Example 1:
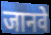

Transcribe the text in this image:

जानवे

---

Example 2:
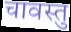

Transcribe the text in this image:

चावस्तु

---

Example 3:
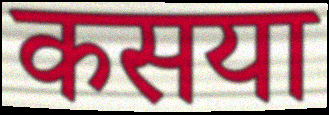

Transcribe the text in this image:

कसया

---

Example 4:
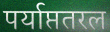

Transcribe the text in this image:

पर्याप्ततरल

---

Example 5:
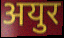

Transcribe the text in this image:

अयुर